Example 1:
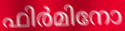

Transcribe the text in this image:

ഫിർമിനോ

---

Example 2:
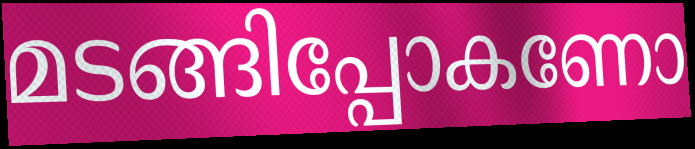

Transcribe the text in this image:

മടങ്ങിപ്പോകണോ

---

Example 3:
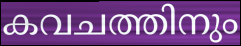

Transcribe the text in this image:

കവചത്തിനും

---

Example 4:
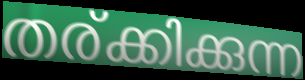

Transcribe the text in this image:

തര്ക്കിക്കുന്ന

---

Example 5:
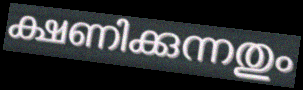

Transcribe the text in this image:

ക്ഷണിക്കുന്നതും